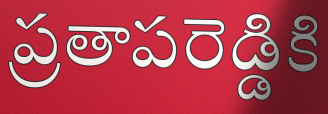
ప్రతాపరెడ్డికి